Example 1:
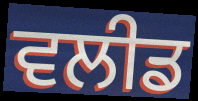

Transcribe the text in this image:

ਵਲੀਡ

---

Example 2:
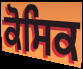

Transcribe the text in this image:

ਕੋਸਿਕ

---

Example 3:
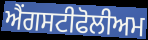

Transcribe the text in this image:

ਐਂਗਸਟੀਫੋਲੀਅਮ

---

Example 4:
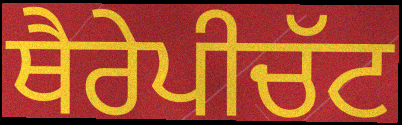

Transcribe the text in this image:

ਥੈਰੇਪੀਚੱਟ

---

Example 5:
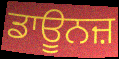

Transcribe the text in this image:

ਡਾਊਨਜ਼